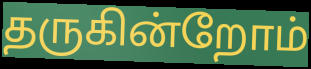
தருகின்றோம்